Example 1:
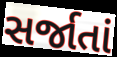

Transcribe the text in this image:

સર્જાતાં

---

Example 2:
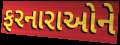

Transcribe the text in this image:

ફરનારાઓને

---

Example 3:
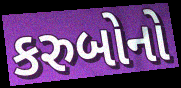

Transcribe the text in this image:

કરુબોનો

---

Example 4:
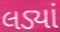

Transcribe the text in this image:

લડ્યાં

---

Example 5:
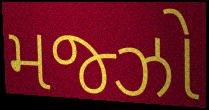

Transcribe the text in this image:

મજ્ઝો